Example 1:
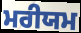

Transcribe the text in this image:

ਮਰੀਯਮ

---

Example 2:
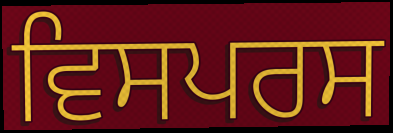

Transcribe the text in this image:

ਵਿਸਪਰਸ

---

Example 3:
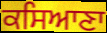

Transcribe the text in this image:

ਕਸਿਆਣਾ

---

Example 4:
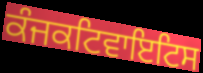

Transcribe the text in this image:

ਕੰਜਕਟਿਵਾਇਟਿਸ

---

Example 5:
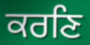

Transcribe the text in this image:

ਕਰਣਿ